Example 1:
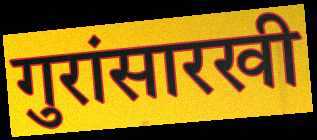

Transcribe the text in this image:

गुरांसारखी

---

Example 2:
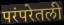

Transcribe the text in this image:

परंपरेतली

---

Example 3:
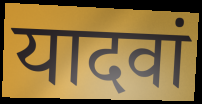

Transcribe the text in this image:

यादवां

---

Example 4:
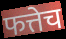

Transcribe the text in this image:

फत्तेच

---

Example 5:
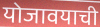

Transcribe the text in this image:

योजावयाची